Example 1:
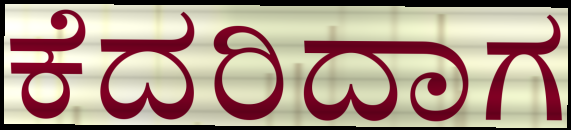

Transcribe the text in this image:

ಕೆದರಿದಾಗ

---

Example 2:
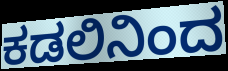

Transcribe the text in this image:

ಕಡಲಿನಿಂದ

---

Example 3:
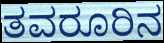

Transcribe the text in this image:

ತವರೂರಿನ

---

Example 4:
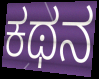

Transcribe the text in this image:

ಕಥನ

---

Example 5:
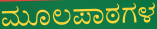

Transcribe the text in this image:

ಮೂಲಪಾಠಗಳ